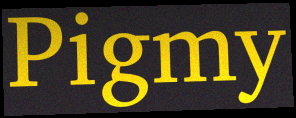
Pigmy